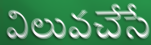
విలువచేసే